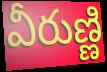
వీరుణ్ణి